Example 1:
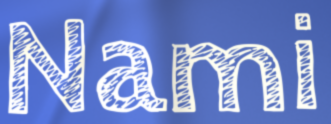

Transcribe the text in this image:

Nami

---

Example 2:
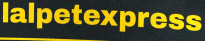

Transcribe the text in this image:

lalpetexpress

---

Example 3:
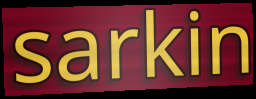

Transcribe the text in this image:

sarkin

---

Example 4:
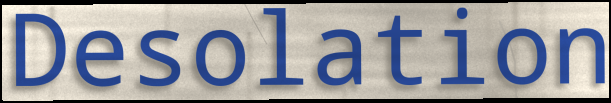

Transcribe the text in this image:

Desolation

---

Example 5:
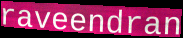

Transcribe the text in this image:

raveendran